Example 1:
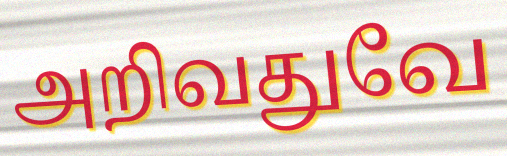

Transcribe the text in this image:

அறிவதுவே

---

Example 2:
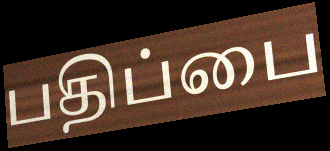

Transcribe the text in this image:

பதிப்பை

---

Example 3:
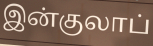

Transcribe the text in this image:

இன்குலாப்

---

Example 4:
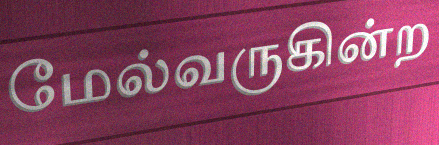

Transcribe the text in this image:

மேல்வருகின்ற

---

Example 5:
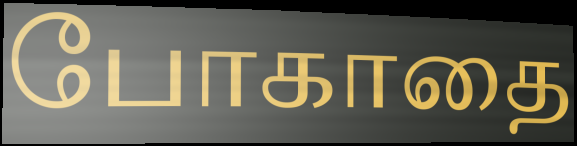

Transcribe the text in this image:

போகாதை